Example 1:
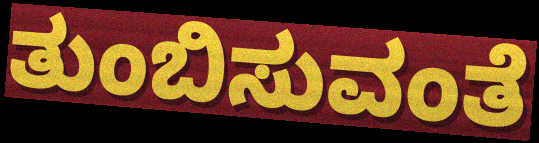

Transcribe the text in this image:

ತುಂಬಿಸುವಂತೆ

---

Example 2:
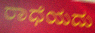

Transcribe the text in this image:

ರಾಧೆಯದು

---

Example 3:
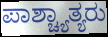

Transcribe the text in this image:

ಪಾಶ್ಚ್ಯಾತ್ಯರು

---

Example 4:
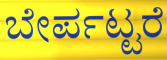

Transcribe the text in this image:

ಬೇರ್ಪಟ್ಟರೆ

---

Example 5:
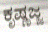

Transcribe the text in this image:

ಕೃಷ್ಣಜ್ಜ